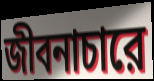
জীবনাচারে